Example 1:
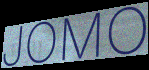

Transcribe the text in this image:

JOMO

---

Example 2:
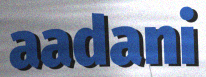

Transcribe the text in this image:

aadani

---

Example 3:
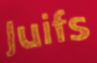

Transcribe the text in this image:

Juifs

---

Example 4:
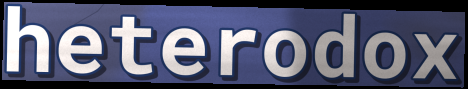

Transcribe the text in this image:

heterodox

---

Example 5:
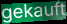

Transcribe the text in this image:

gekauft